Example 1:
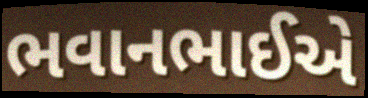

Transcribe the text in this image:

ભવાનભાઈએ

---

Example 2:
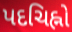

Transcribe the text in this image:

પદચિહ્નો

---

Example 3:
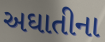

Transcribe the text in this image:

અઘાતીના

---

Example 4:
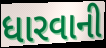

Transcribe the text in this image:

ધારવાની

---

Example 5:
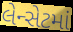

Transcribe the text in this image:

લેન્સેટમાં